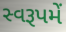
સ્વરૂપમેં